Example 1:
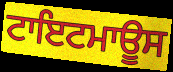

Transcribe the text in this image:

ਟਾਇਟਮਾਊਸ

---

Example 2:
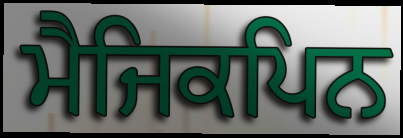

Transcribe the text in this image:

ਮੈਜਿਕਪਿਨ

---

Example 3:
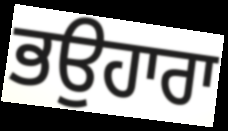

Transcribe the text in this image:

ਭਉਹਾਰਾ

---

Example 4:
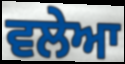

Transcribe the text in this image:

ਵਲੇਆ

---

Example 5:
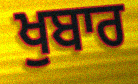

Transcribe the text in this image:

ਖੁਬਾਰ